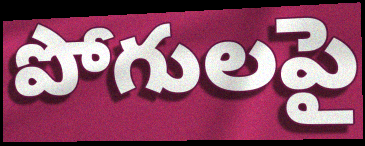
పోగులపై